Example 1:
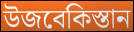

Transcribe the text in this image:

উজবেকিস্তান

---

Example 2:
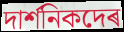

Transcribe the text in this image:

দাৰ্শনিকদেৰ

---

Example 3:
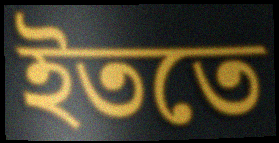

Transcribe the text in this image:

ইততে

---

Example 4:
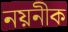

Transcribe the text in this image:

নয়নীক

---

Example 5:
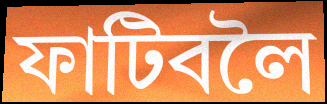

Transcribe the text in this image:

ফাটিবলৈ